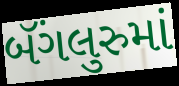
બૅંગલુરુમાં